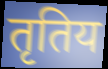
तृतिय